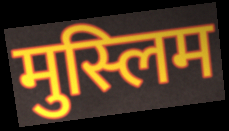
मुस्‍लिम